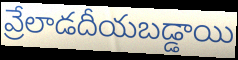
వ్రేలాడదీయబడ్డాయి